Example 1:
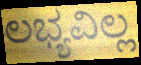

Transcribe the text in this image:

ಲಭ್ಯವಿಲ್ಲ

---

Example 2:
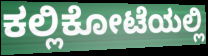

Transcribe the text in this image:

ಕಲ್ಲಿಕೋಟೆಯಲ್ಲಿ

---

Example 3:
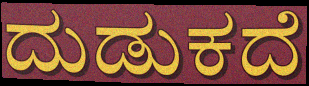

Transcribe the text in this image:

ದುಡುಕದೆ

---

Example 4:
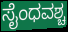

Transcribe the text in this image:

ಸೈಂಧವಶ್ಚ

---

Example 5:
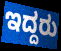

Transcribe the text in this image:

ಇದ್ದರು